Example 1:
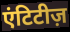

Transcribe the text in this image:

एंटिटीज़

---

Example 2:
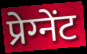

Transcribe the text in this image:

प्रेग्‍नेंट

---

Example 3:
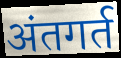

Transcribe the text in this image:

अंतगर्त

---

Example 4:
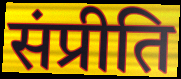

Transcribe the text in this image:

संप्रीति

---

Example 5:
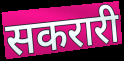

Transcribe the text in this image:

सकरारी